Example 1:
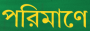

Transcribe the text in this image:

পরিমাণে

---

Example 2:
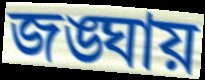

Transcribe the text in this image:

জঙ্ঘায়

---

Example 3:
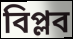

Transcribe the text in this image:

বিপ্লব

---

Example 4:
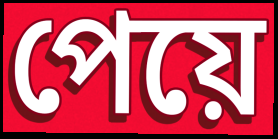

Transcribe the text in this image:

পেয়ে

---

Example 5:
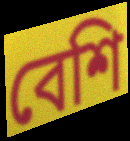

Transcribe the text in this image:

বেশি